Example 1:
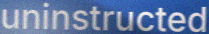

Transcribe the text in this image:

uninstructed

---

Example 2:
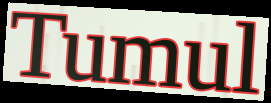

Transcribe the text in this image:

Tumul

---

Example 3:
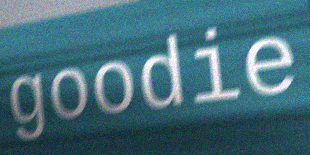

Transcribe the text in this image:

goodie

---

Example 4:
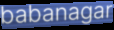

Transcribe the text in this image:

babanagar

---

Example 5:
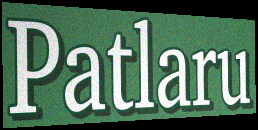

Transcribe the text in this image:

Patlaru